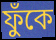
ফুঁকে